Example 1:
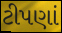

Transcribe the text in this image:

ટીપણાં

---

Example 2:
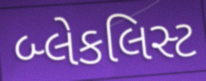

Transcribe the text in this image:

બ્લેકલિસ્ટ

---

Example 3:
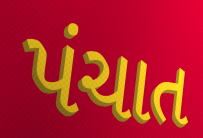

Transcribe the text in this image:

પંચાત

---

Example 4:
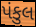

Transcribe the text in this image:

પંકુલ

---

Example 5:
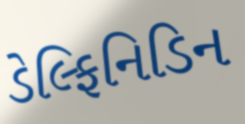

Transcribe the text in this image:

ડેલ્ફિનિડિન